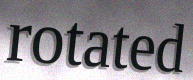
rotated